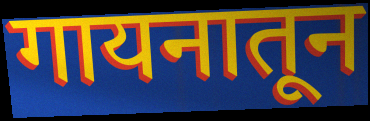
गायनातून